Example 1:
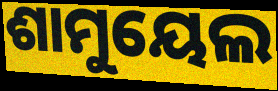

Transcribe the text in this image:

ଶାମୁୟେଲ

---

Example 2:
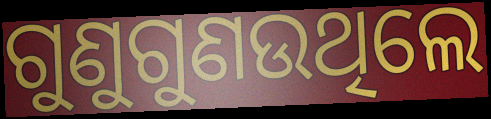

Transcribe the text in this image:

ଗୁଣୁଗୁଣଉଥିଲେ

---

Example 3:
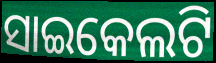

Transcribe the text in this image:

ସାଇକେଲଟି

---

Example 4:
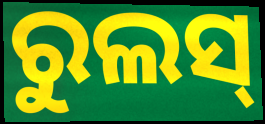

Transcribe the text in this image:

ରୁଲସ୍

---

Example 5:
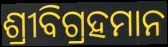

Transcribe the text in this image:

ଶ୍ରୀବିଗ୍ରହମାନ